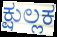
ಕ್ಷುಲ್ಲಕ